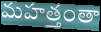
మహత్తంతా